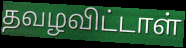
தவழவிட்டாள்